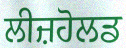
ਲੀਜ਼ਹੋਲਡ